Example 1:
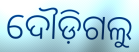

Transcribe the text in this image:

ଦୌଡ଼ିଗଲୁ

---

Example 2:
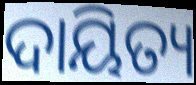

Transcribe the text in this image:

ଦାୟିତ୍ୟ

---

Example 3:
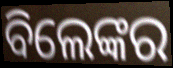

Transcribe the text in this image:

ବିଲେଙ୍କର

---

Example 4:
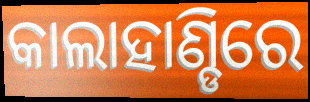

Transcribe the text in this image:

କାଲାହାଣ୍ଡିରେ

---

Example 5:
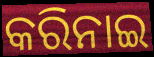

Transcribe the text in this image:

କରିନାଇ